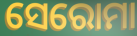
ସେରୋମା